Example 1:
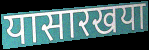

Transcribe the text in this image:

यासारखया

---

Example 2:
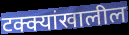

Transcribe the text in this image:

टक्क्यांखालील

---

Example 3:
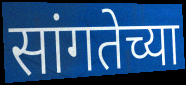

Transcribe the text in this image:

सांगतेच्या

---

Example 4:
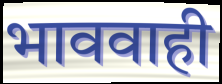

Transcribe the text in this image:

भाववाही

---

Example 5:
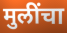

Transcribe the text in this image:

मुलींचा